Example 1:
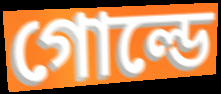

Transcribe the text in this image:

গোল্ডে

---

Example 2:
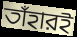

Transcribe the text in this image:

তাঁহারই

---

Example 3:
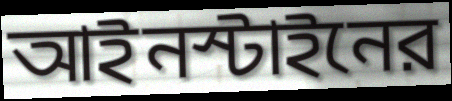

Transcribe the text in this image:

আইনস্টাইনের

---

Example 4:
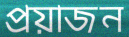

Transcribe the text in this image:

প্রয়াজন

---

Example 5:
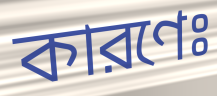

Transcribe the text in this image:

কারণেঃ